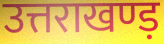
उत्तराखण्ड़